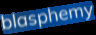
blasphemy